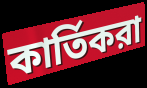
কার্তিকরা